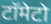
टॉमेटो